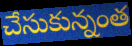
చేసుకున్నంత